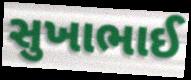
સુખાભાઈ